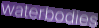
waterbodies